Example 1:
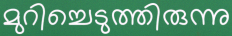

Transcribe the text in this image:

മുറിച്ചെടുത്തിരുന്നു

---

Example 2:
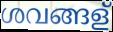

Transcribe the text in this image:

ശവങ്ങള്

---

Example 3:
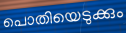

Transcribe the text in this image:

പൊതിയെടുക്കും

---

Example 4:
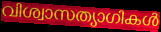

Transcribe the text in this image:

വിശ്വാസത്യാഗികൾ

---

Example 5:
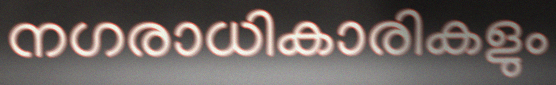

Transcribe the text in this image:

നഗരാധികാരികളും